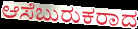
ಆಸೆಬುರುಕರಾದ